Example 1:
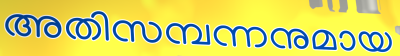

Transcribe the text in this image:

അതിസമ്പന്നനുമായ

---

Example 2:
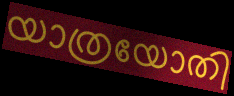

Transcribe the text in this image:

യാത്രയോതി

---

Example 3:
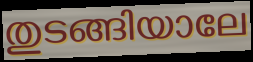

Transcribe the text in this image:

തുടങ്ങിയാലേ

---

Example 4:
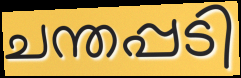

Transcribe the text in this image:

ചന്തപ്പടി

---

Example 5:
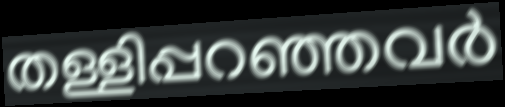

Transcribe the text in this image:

തള്ളിപ്പറഞ്ഞവർ